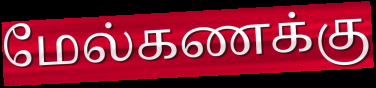
மேல்கணக்கு